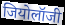
जियोलॉजी